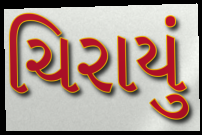
ચિરાયું